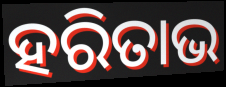
ହରିତାଭ